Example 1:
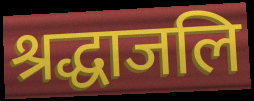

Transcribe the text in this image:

श्रद्धाजलि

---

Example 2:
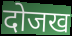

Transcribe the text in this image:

दोजख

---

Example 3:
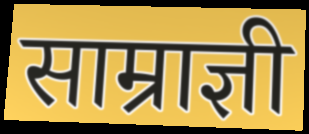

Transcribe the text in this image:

साम्राज्ञी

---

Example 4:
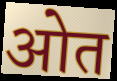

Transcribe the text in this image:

ओत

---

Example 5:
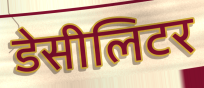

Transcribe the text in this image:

डेसीलिटर